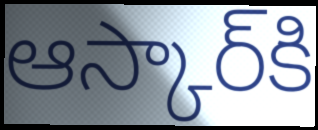
ఆస్కార్‌కి